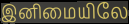
இனிமையிலே